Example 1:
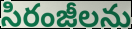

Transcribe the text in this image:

సిరంజీలను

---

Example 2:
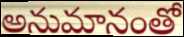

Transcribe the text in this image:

అనుమానంతో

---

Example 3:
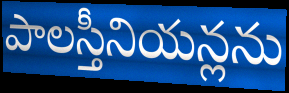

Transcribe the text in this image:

పాలస్తీనియన్లను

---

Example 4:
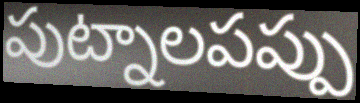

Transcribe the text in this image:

పుట్నాలపప్పు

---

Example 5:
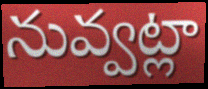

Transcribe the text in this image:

నువ్వట్లా